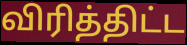
விரித்திட்ட